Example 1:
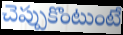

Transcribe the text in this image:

చెప్పుకొంటుంటే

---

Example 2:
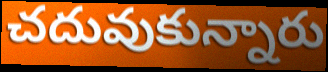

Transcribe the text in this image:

చదువుకున్నారు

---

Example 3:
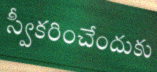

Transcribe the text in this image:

స్వీకరించేందుకు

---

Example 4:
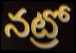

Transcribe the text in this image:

నట్రో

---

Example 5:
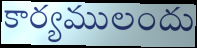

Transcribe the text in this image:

కార్యములందు